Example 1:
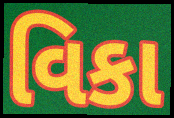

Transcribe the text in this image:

વિકા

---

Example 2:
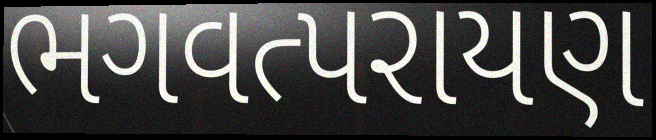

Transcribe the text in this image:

ભગવત્પરાયણ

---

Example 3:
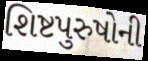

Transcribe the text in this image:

શિષ્ટપુરુષોની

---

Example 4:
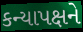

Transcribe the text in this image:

કન્યાપક્ષને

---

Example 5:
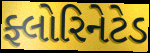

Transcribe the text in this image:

ફ્લોરિનેટેડ